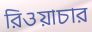
রিওয়াচার